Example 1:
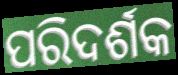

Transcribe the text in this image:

ପରିଦର୍ଶକ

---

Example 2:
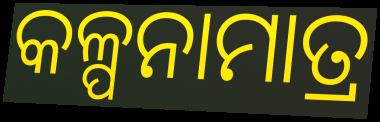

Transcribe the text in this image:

କଳ୍ପନାମାତ୍ର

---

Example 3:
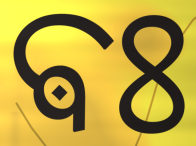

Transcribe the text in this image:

ଵଃ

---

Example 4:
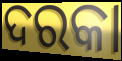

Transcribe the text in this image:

ଦରକା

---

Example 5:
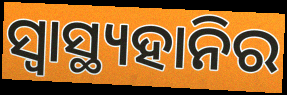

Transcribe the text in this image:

ସ୍ଵାସ୍ଥ୍ୟହାନିର